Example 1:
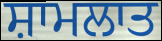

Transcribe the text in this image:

ਸ਼ਾਮਲਾਤ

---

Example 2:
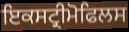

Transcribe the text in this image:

ਇਕਸਟ੍ਰੀਮੋਫਿਲਸ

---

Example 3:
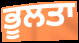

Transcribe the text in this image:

ਭੂਲਤਾ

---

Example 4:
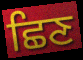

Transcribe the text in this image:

ਛਿਣ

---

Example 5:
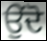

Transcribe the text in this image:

ਉਂਦੋ